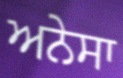
ਅਨੇਸਾ